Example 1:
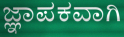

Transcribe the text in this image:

ಜ್ಞಾಪಕವಾಗಿ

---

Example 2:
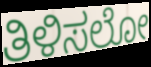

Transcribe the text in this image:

ತಿಳಿಸಲೋ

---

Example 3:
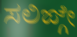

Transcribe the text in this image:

ಸಲಿಙ್ಗೇ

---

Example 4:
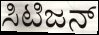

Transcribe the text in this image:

ಸಿಟಿಜನ್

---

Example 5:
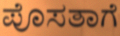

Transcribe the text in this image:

ಪೊಸತಾಗೆ